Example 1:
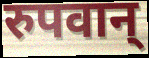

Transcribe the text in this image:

रुपवान्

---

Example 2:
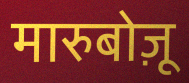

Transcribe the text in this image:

मारुबोज़ू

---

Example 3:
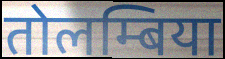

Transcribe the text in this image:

तोलम्बिया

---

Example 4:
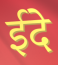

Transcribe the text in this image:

ईदे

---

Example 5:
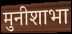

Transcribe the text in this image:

मुनीशाभा